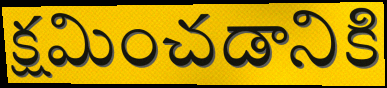
క్షమించడానికి